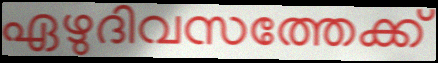
ഏഴുദിവസത്തേക്ക്